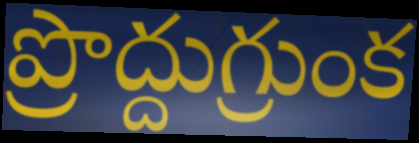
ప్రొద్దుగ్రుంక